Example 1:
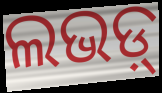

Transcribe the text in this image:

ଲଭଡ଼୍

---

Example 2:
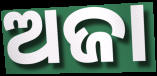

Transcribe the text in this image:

ଅଜା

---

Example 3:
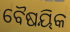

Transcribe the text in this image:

ବୈଷୟିକ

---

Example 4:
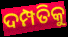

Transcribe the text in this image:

ଦମ୍ପତିକୁ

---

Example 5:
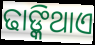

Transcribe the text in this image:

ଢାଙ୍କିଥାଏ